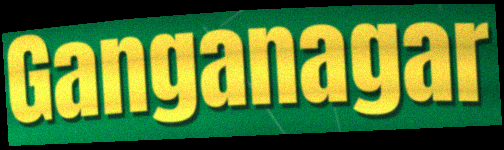
Ganganagar